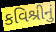
કવિશ્રીનું